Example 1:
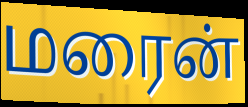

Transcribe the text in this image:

மரைன்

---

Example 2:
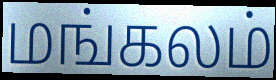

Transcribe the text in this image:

மங்கலம்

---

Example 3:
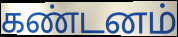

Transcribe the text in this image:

கண்டனம்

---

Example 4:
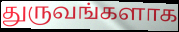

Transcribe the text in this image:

துருவங்களாக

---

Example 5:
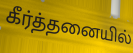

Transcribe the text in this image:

கீர்த்தனையில்